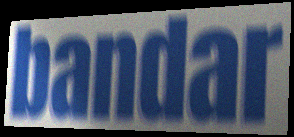
bandar